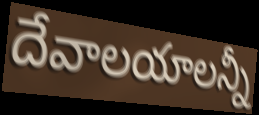
దేవాలయాలన్నీ